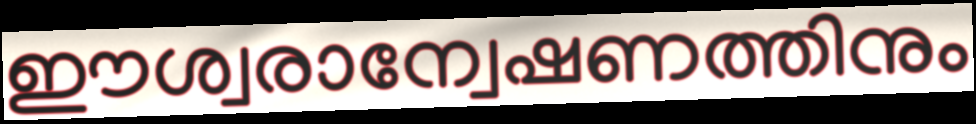
ഈശ്വരാന്വേഷണത്തിനും